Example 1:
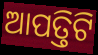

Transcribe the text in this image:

ଆପତ୍ତିଟି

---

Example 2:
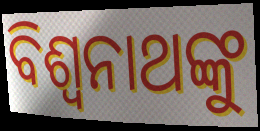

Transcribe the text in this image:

ବିଶ୍ବନାଥଙ୍କୁ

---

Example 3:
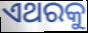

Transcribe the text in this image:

ଏଥରକୁ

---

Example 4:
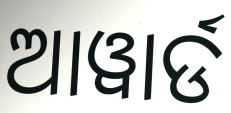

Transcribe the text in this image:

ଆୱାର୍ଡ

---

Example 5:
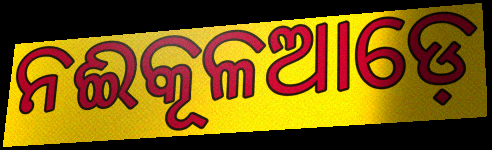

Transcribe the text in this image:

ନଈକୂଳଆଡ଼େ